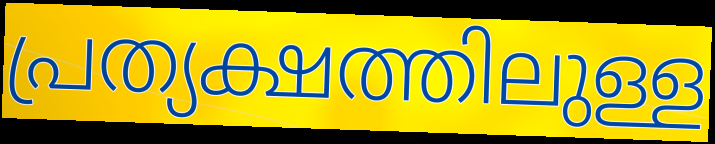
പ്രത്യക്ഷത്തിലുള്ള